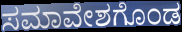
ಸಮಾವೇಶಗೊಂಡ